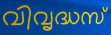
വിവൃദ്ധസ്